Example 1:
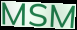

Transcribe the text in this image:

MSM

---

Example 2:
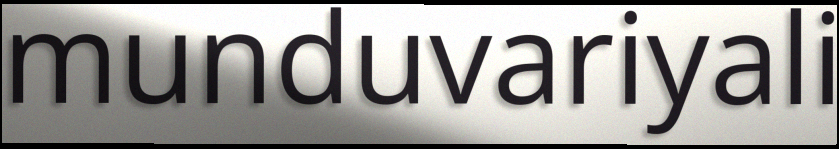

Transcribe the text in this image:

munduvariyali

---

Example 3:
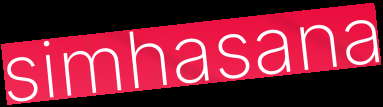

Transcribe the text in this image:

simhasana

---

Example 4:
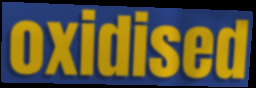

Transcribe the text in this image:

oxidised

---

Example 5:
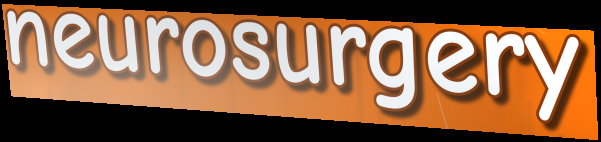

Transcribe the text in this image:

neurosurgery